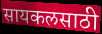
सायकलसाठी